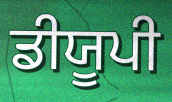
ਡੀਯੂਪੀ